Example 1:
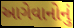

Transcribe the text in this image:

આગેવાનોનું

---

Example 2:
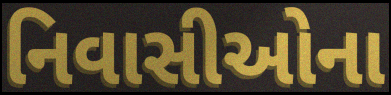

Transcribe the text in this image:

નિવાસીઓના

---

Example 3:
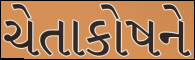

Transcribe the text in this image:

ચેતાકોષને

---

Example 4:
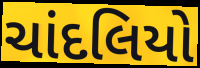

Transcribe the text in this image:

ચાંદલિયો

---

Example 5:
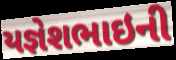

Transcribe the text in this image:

યજ્ઞેશભાઇની